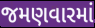
જમણવારમાં